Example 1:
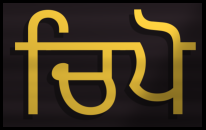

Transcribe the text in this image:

ਚਿਪੋ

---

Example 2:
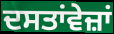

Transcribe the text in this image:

ਦਸਤਾਂਵੇਜ਼ਾਂ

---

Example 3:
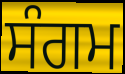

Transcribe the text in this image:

ਸੰਗਮ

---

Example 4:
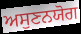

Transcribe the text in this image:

ਅਸੁਣਨਯੋਗ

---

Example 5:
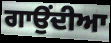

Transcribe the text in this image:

ਗਾਉਂਦੀਆ